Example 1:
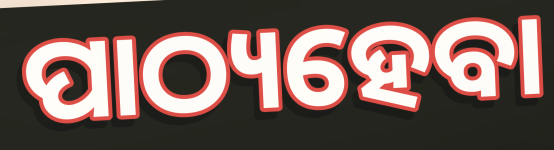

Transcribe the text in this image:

ପାଠ୍ୟହେବା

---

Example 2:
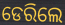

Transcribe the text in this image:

ଡେରିଲେ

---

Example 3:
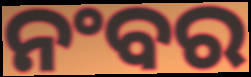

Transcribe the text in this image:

ନଂବର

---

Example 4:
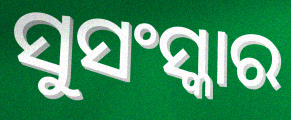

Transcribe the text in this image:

ସୁସଂସ୍କାର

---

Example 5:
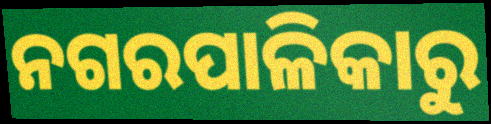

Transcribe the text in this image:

ନଗରପାଳିକାରୁ